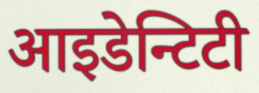
आइडेन्टिटी